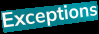
Exceptions